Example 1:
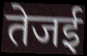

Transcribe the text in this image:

तेजई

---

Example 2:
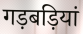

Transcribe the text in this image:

गड़बड़ियां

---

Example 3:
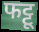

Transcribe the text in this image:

फट्टू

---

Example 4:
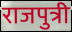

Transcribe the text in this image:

राजपुत्री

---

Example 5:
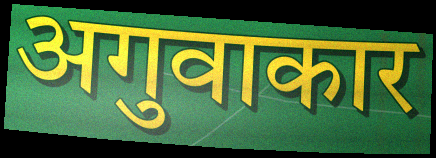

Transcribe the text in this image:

अगुवाकार